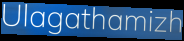
Ulagathamizh